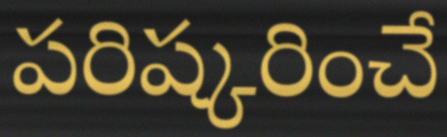
పరిష్కరించే